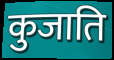
कुजाति